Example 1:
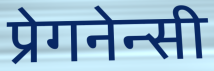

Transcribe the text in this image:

प्रेगनेन्सी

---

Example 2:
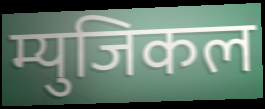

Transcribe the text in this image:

म्युजिकल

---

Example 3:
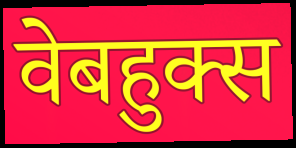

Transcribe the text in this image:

वेबहुक्स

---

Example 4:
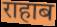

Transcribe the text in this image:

राहाब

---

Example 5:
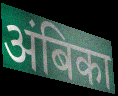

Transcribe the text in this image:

अंबिका